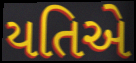
યતિએ